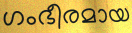
ഗംഭീരമായ